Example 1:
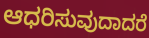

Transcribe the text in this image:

ಆಧರಿಸುವುದಾದರೆ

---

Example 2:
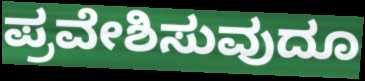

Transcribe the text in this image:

ಪ್ರವೇಶಿಸುವುದೂ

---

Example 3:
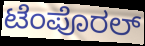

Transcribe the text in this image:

ಟೆಂಪೊರಲ್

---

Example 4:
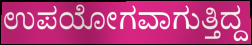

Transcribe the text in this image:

ಉಪಯೋಗವಾಗುತ್ತಿದ್ದ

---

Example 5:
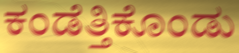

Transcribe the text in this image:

ಕಂಡೆತ್ತಿಕೊಂಡು